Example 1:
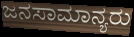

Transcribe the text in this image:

ಜನಸಾಮಾನ್ಯರು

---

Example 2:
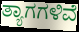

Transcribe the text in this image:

ತ್ಯಾಗಗಳಿವೆ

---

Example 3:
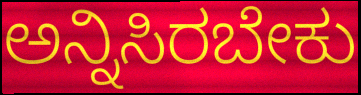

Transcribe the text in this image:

ಅನ್ನಿಸಿರಬೇಕು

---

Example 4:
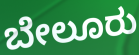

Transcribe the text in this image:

ಬೇಲೂರು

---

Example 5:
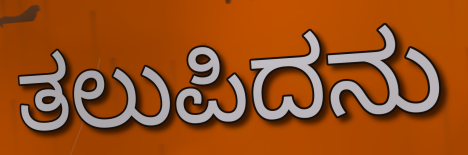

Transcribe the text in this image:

ತಲುಪಿದನು